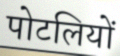
पोटलियों